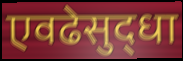
एवढेसुद्धा